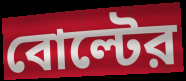
বোল্টের